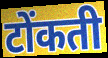
टोंकती